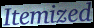
Itemized